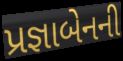
પ્રજ્ઞાબેનની